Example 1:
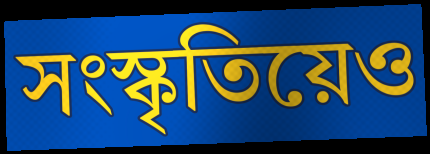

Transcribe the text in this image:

সংস্কৃতিয়েও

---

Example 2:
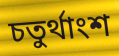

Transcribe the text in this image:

চতুৰ্থাংশ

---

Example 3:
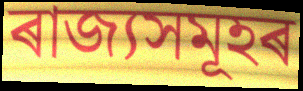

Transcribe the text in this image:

ৰাজ্যসমূহৰ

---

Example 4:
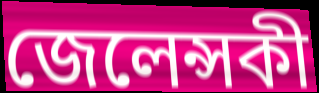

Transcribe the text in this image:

জেলেন্সকী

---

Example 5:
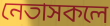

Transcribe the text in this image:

নেতাসকলে